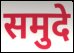
समुदे